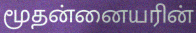
மூதன்னையரின்